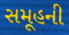
સમૂહની